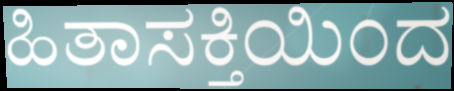
ಹಿತಾಸಕ್ತಿಯಿಂದ